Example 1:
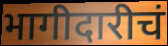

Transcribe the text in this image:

भागीदारीचं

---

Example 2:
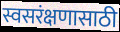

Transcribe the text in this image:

स्वसरंक्षणासाठी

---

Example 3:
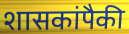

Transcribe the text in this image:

शासकांपैकी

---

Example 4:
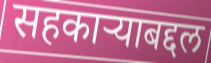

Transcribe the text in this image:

सहकाऱ्याबद्दल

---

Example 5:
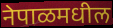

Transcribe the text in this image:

नेपाळमधील